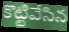
కొట్టివేసిన